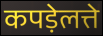
कपड़ेलत्ते